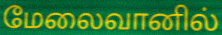
மேலைவானில்